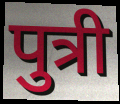
पुत्री